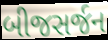
બીજસર્જન